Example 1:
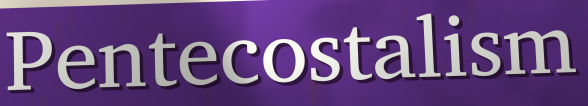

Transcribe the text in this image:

Pentecostalism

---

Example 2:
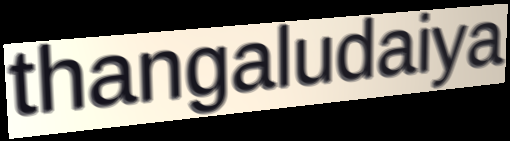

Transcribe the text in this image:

thangaludaiya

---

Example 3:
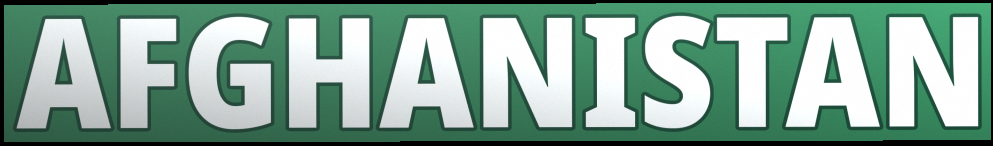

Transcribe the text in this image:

AFGHANISTAN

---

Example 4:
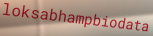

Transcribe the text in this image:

loksabhampbiodata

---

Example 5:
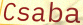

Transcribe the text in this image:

Csaba